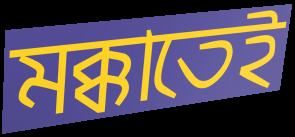
মক্কাতেই